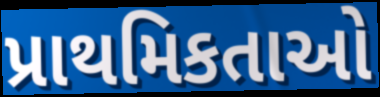
પ્રાથમિકતાઓ